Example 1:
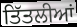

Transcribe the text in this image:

ਤਿੱਤਲੀਆਂ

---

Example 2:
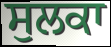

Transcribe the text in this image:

ਸੁਲਕਾ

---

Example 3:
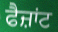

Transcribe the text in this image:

ਫੈਜ਼ਾਂਟ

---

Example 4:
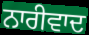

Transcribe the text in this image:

ਨਾਰੀਵਾਦ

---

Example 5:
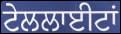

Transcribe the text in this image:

ਟੇਲਲਾਈਟਾਂ